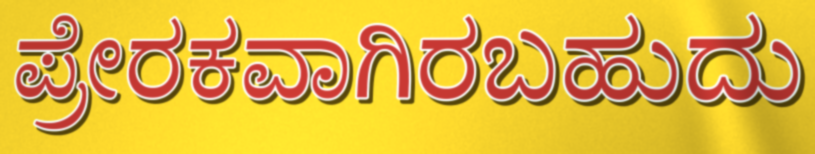
ಪ್ರೇರಕವಾಗಿರಬಹುದು